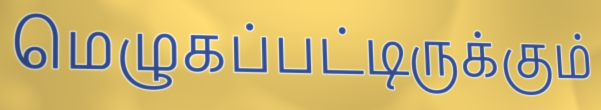
மெழுகப்பட்டிருக்கும்